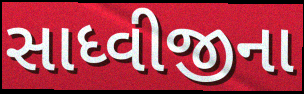
સાધ્વીજીના